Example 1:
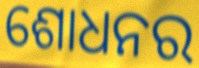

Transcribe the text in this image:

ଶୋଧନର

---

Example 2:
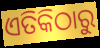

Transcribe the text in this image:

ଏତିକିଠାରୁ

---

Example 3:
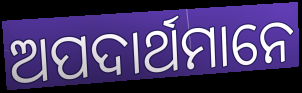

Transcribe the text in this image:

ଅପଦାର୍ଥମାନେ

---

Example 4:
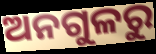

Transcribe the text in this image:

ଅନଗୁଳରୁ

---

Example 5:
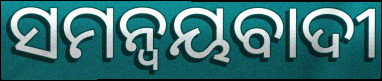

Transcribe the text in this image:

ସମନ୍ୱୟବାଦୀ